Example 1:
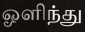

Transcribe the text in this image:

ஓளிந்து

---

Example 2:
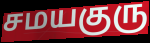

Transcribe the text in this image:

சமயகுரு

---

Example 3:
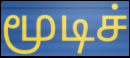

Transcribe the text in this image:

மூடிச்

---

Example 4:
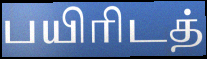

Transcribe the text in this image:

பயிரிடத்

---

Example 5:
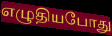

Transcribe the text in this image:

எழுதியபோது